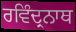
ਰਵਿੰਦ੍ਰਨਾਥ